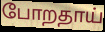
போறதாய்